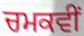
ਚਮਕਵੀਂ